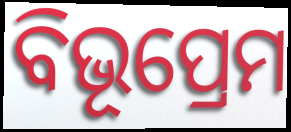
ବିଭୂପ୍ରେମ